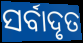
ସର୍ବାଦୃତ